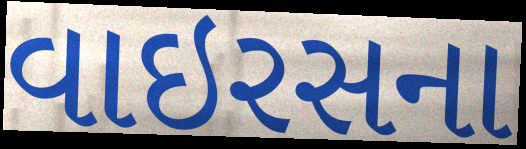
વાઇરસના